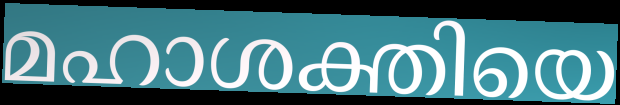
മഹാശക്തിയെ